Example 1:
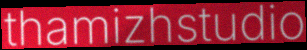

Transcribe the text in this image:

thamizhstudio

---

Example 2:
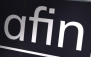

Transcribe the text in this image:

afin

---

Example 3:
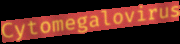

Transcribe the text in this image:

Cytomegalovirus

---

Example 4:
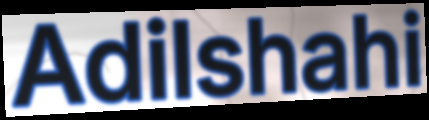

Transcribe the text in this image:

Adilshahi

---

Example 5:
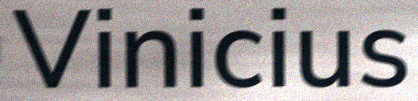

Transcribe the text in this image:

Vinicius